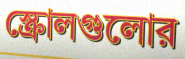
স্ক্রোলগুলোর